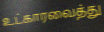
உட்காரவைத்து